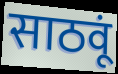
साठवूं